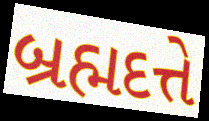
બ્રહ્મદત્તે